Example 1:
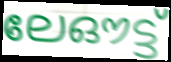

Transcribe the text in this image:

ലേഔട്ട്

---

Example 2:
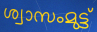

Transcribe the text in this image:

ശ്വാസംമുട്ട്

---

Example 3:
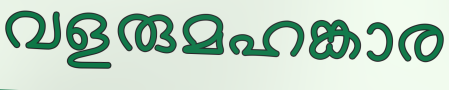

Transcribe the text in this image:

വളരുമഹങ്കാര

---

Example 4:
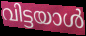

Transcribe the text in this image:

വിട്ടയാൾ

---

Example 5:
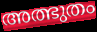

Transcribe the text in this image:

അത്ഭുതം